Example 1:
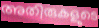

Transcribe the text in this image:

അതിരുകളുടെ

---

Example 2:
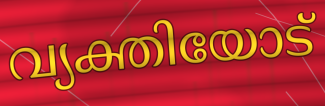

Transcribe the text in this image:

വ്യക്തിയോട്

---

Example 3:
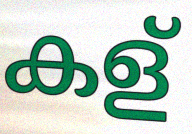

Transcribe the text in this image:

കള്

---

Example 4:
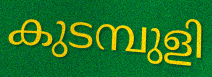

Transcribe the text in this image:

കുടമ്പുളി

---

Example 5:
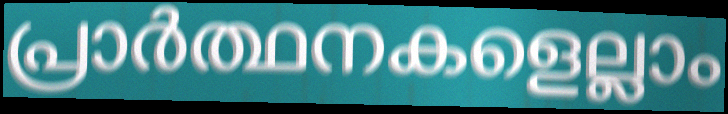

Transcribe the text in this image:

പ്രാർത്ഥനകളെല്ലാം